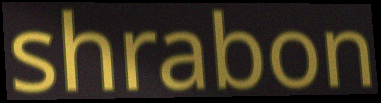
shrabon